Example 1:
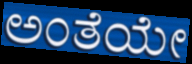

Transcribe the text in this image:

ಅಂತೆಯೇ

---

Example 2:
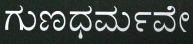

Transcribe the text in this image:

ಗುಣಧರ್ಮವೇ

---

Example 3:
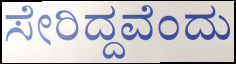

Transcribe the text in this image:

ಸೇರಿದ್ದವೆಂದು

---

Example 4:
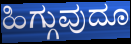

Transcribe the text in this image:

ಹಿಗ್ಗುವುದೂ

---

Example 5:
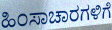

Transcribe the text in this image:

ಹಿಂಸಾಚಾರಗಳಿಗೆ